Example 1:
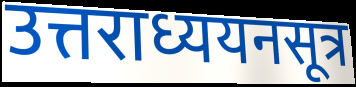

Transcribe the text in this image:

उत्तराध्ययनसूत्र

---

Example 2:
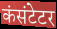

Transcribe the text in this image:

कंसंटेटर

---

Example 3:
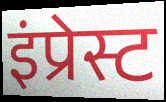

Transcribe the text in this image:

इंप्रेस्ट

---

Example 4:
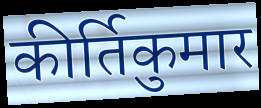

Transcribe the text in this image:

कीर्तिकुमार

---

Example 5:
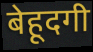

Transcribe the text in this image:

बेहूदगी